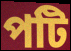
পটি